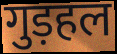
गुड़हल